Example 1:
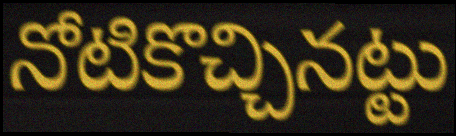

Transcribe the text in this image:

నోటికొచ్చినట్టు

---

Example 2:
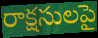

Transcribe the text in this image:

రాక్షసులపై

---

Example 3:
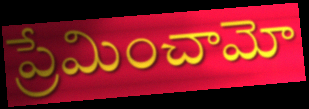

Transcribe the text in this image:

ప్రేమించామో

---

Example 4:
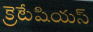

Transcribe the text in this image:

క్రెటేషియస్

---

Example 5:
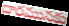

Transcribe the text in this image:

దారమునకు